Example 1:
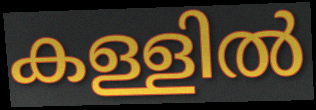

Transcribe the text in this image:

കള്ളിൽ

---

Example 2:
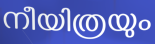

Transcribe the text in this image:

നീയിത്രയും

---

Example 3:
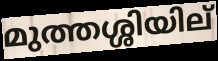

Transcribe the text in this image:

മുത്തശ്ശിയില്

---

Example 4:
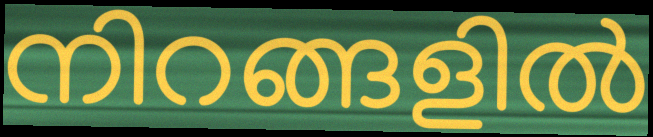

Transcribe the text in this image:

നിറങ്ങളിൽ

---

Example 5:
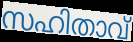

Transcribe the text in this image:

സഹിതാവ്